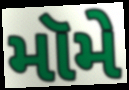
મૉમે